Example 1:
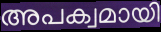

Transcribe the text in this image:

അപക്വമായി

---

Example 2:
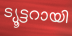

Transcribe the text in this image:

ട്യൂട്ടറായി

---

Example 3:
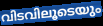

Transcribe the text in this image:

വിടവിലൂടെയും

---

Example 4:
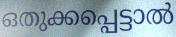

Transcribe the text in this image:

ഒതുക്കപ്പെട്ടാൽ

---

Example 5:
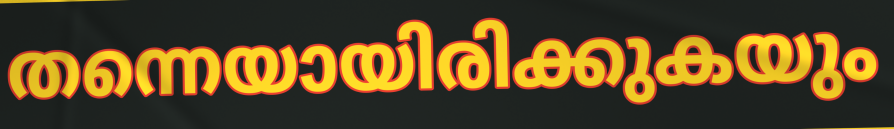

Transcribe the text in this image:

തന്നെയായിരിക്കുകയും